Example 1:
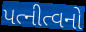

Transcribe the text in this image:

પત્નીત્વનો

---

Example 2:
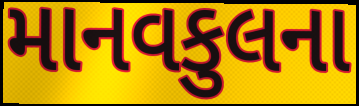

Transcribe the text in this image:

માનવકુલના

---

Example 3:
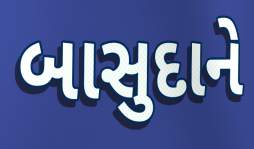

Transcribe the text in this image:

બાસુદાને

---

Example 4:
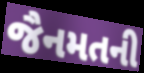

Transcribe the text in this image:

જૈનમતની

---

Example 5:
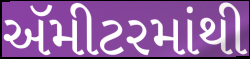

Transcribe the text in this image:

ઍમીટરમાંથી